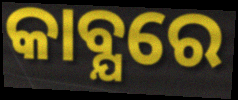
କାବ୍ଯରେ